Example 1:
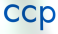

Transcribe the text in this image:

ccp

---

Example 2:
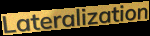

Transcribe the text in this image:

Lateralization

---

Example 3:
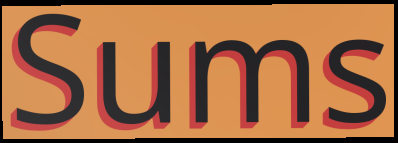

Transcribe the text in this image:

Sums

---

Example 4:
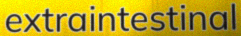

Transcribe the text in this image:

extraintestinal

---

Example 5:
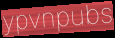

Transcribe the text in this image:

ypvnpubs